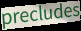
precludes